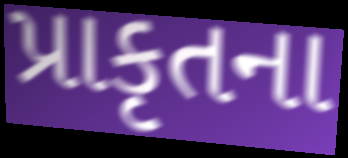
પ્રાકૃતના